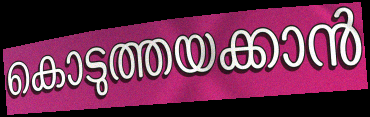
കൊടുത്തയക്കാൻ